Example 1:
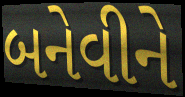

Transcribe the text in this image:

બનેવીને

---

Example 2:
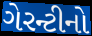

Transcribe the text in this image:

ગેરન્ટીનો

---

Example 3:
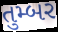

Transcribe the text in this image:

તુમ્બર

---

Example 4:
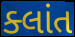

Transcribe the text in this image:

ક્લાંત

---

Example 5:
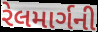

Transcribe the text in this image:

રેલમાર્ગની